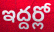
ఇద్దర్లో